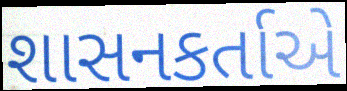
શાસનકર્તાએ